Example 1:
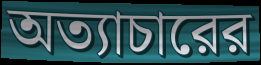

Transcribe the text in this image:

অত্যাচারের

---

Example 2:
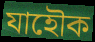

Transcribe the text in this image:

যাহৌক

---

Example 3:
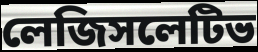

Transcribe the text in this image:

লেজিসলেটিভ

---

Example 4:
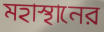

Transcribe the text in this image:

মহাস্থানের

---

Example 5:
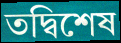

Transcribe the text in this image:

তদ্বিশেষ